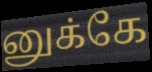
னுக்கே